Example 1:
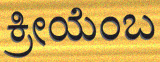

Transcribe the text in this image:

ಕ್ರೀಯೆಂಬ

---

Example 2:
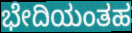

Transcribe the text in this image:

ಭೇದಿಯಂತಹ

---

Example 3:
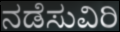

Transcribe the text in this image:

ನಡೆಸುವಿರಿ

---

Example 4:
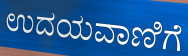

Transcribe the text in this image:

ಉದಯವಾಣಿಗೆ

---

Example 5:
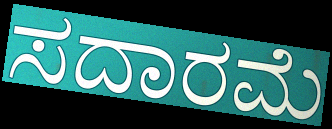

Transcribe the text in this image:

ಸದಾರಮೆ